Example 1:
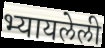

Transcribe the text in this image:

भ्यायलेली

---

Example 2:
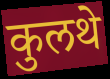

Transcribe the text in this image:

कुलथे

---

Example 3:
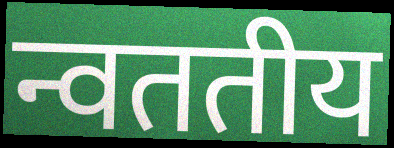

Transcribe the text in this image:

न्वततीय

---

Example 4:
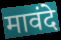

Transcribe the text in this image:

मावंदे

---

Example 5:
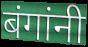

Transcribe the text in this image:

बंगांनी